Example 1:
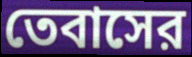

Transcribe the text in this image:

তেবাসের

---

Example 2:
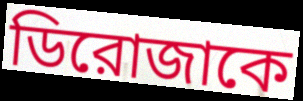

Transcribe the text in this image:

ডিরোজাকে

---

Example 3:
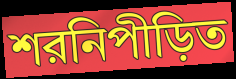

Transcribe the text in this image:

শরনিপীড়িত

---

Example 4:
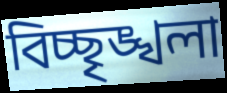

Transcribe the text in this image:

বিচ্ছৃঙ্খলা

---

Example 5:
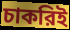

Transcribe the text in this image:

চাকরিই